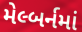
મેલ્બર્નમાં